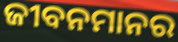
ଜୀବନମାନର